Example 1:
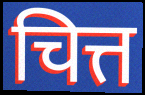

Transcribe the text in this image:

चित्त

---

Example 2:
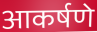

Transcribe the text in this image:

आकर्षणे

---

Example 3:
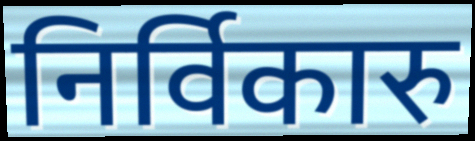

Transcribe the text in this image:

निर्विकारु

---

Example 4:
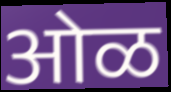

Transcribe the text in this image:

ओळ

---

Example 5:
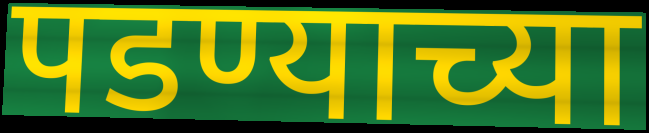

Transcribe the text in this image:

पडण्याच्या